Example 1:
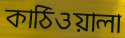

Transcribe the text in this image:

কাঠিওয়ালা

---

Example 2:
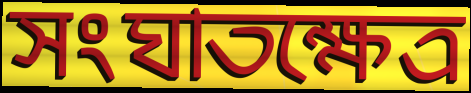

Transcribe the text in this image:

সংঘাতক্ষেত্র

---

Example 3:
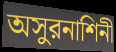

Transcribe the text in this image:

অসুরনাশিনী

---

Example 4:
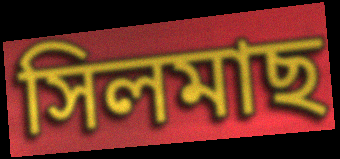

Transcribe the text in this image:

সিলমাছ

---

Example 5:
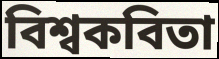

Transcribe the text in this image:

বিশ্বকবিতা